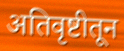
अतिवृष्टीतून